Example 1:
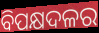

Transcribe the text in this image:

ବିପକ୍ଷଦଳର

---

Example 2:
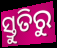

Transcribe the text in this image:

ସ୍ତୁତିରୁ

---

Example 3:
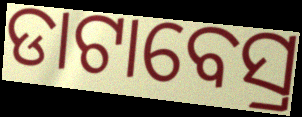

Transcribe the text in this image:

ଡାଟାବେସ୍ର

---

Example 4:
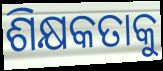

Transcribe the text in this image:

ଶିକ୍ଷକତାକୁ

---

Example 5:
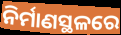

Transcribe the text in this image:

ନିର୍ମାଣସ୍ଥଳରେ